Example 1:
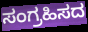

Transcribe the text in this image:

ಸಂಗ್ರಹಿಸದ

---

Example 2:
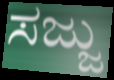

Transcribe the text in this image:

ಸಜ್ಜು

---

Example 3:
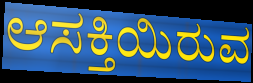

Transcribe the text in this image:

ಆಸಕ್ತಿಯಿರುವ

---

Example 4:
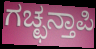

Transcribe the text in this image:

ಗಚ್ಛನ್ತಾಪಿ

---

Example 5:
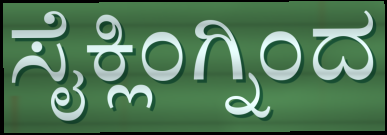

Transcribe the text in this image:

ಸೈಕ್ಲಿಂಗ್ನಿಂದ